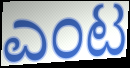
ಎಂಟ